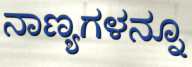
ನಾಣ್ಯಗಳನ್ನೂ